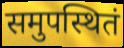
समुपस्थितं